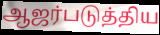
ஆஜர்படுத்திய